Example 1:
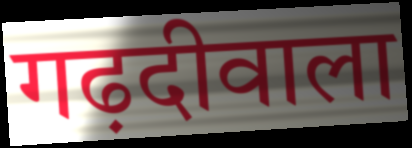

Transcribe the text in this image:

गढ़दीवाला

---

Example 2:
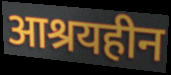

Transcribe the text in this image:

आश्रयहीन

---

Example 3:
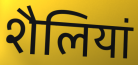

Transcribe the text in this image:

शैलियां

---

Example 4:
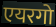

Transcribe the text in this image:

एयरगो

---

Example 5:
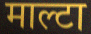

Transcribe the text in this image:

माल्टा